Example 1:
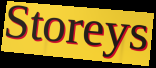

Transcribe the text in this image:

Storeys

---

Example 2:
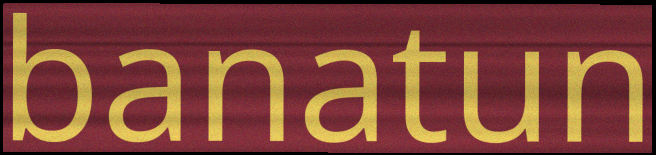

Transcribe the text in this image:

banatun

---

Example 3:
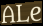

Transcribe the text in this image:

ALe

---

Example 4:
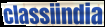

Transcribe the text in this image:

classiindia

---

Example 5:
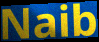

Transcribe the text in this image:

Naib